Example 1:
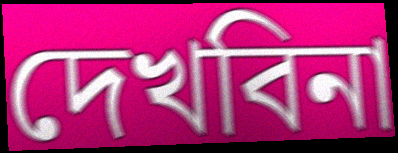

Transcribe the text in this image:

দেখবিনা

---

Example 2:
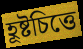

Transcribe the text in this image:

হূষ্টচিত্তে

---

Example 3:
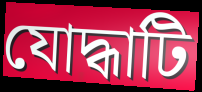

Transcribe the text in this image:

যোদ্ধাটি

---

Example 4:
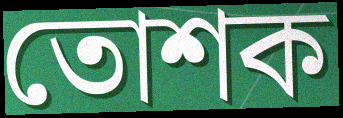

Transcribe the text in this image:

তোশক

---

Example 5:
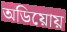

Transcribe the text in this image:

অডিয়োয়